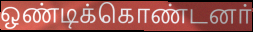
ஒண்டிக்கொண்டனர்